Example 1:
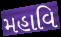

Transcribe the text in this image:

મહાવિ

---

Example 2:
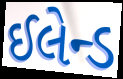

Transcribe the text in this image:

ઈલેન્ડ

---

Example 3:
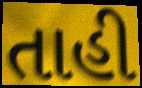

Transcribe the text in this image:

તાહી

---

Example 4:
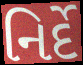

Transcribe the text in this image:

નિર્દે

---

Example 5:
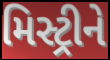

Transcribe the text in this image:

મિસ્ટ્રીને